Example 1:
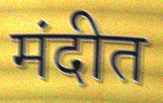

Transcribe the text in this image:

मंदीत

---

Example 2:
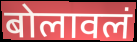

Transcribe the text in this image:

बोलावलं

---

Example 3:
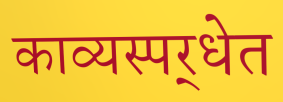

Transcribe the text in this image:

काव्यस्पर्धेत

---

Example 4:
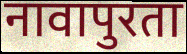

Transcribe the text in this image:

नावापुरता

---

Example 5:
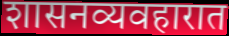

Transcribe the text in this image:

शासनव्यवहारात